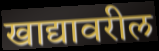
खाद्यावरील